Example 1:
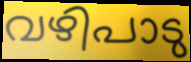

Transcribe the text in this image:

വഴിപാടു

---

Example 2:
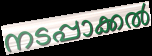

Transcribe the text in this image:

നടപ്പാക്കൽ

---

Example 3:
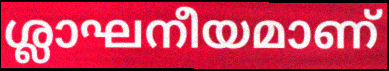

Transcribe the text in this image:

ശ്ലാഘനീയമാണ്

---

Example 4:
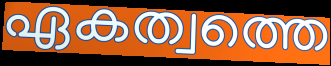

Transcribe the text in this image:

ഏകത്വത്തെ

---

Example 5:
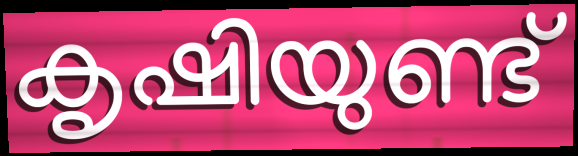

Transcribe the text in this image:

കൃഷിയുണ്ട്